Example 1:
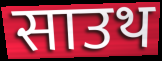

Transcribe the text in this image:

साउथ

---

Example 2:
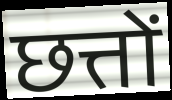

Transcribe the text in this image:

छत्तों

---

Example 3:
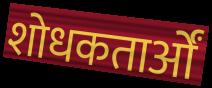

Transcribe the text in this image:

शोधकतार्ओं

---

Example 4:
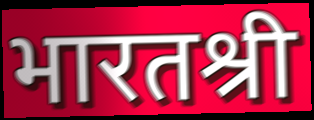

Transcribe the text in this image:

भारतश्री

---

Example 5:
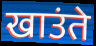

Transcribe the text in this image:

खाउंते